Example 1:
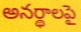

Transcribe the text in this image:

అనర్థాలపై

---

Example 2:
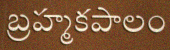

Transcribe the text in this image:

బ్రహ్మకపాలం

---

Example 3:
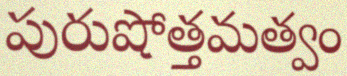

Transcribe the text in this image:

పురుషోత్తమత్వం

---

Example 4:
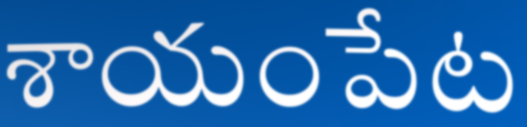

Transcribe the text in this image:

శాయంపేట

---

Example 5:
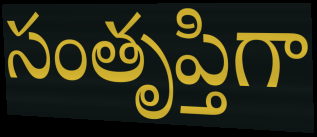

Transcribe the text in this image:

సంతృప్తిగా